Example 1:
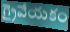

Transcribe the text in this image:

గ్రైవేయకం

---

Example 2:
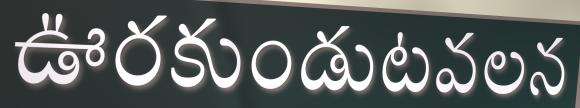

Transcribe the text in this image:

ఊరకుండుటవలన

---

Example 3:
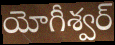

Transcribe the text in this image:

యోగీశ్వర్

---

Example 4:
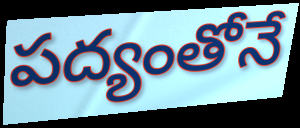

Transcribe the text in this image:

పద్యంతోనే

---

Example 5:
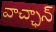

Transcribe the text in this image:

వాచ్ఛాన్